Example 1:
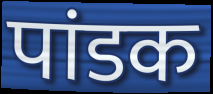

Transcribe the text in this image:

पांडक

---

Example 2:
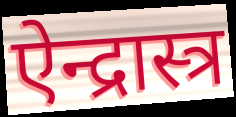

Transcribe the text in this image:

ऐन्द्रास्त्र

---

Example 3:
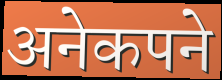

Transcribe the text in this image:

अनेकपने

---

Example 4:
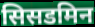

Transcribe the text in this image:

सिसडमिन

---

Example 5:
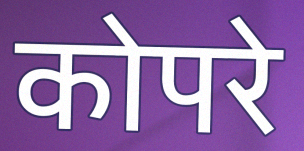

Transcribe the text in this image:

कोपरे